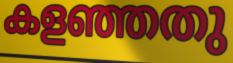
കളഞ്ഞതു